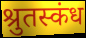
श्रुतस्कंध